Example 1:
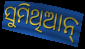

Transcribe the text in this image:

ସୁମିଥିଆନ୍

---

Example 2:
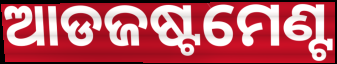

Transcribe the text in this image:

ଆଡଜଷ୍ଟମେଣ୍ଟ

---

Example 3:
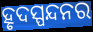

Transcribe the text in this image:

ହୃଦସ୍ପନ୍ଦନର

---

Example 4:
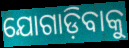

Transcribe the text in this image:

ଯୋଗାଡ଼ିବାକୁ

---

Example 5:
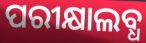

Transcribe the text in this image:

ପରୀକ୍ଷାଲବ୍ଧ